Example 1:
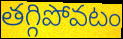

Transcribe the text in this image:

తగ్గిపోవటం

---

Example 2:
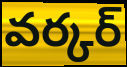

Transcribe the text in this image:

వర్కర్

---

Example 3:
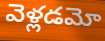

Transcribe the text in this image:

వెళ్లడమో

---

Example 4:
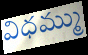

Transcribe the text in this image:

విధమ్ము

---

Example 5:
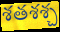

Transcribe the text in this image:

శతశశ్చ